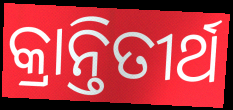
କ୍ରାନ୍ତିତୀର୍ଥ